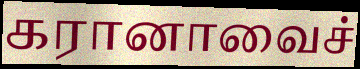
கரானாவைச்